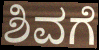
ಶಿವಗೆ